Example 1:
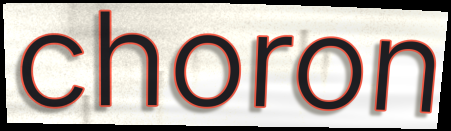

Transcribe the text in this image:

choron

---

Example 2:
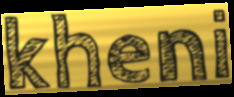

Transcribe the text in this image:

kheni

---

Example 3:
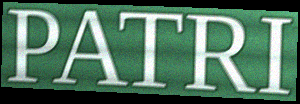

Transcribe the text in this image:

PATRI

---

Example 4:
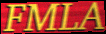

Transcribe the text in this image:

FMLA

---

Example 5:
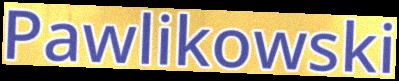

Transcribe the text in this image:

Pawlikowski